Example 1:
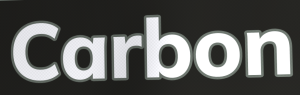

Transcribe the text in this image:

Carbon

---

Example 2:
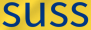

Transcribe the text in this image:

suss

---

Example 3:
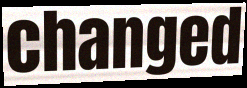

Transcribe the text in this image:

changed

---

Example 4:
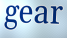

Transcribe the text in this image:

gear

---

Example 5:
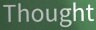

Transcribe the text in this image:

Thought